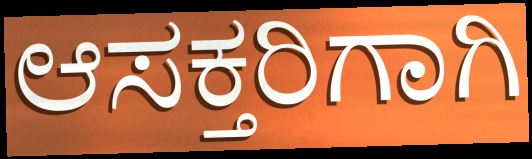
ಆಸಕ್ತರಿಗಾಗಿ